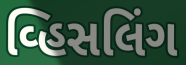
વ્હિસલિંગ